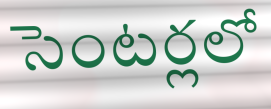
సెంటర్లలో